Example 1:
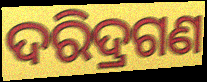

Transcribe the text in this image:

ଦରିଦ୍ରଗଣ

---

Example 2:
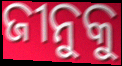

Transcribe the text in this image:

ଜୀନୁକୁ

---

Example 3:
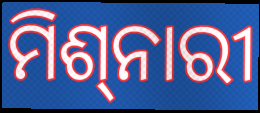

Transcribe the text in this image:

ମିଶ୍‍ନାରୀ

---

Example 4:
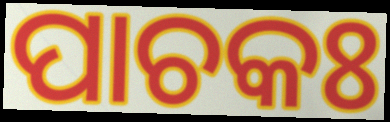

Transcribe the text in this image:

ପାଚକଃ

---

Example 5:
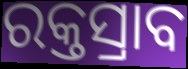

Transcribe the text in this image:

ରକ୍ତସ୍ରାବ